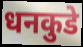
धनकुडे